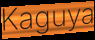
Kaguya